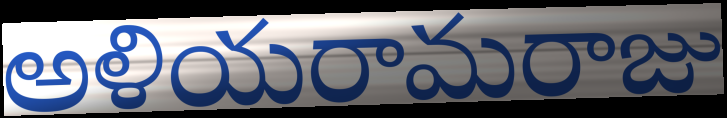
అళియరామరాజు